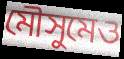
মৌসুমেও